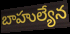
బాహుల్యేన